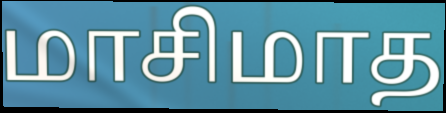
மாசிமாத